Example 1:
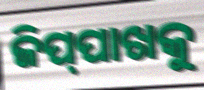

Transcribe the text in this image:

ଜିପ୍‌ପାଖକୁ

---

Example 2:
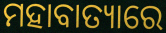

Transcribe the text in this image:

ମହାବାତ୍ୟାରେ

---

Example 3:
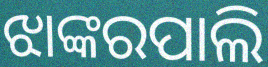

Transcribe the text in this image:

ଝାଙ୍କରପାଲି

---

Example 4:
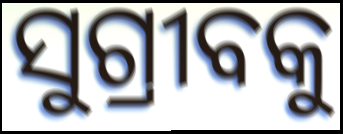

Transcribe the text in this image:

ସୁଗ୍ରୀବକୁ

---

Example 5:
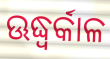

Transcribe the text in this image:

ଊଦ୍ଧ୍ୱର୍କାଳ